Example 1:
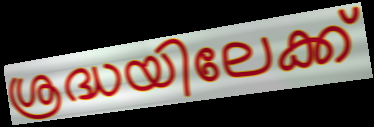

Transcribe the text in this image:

ശ്രദ്ധയിലേക്ക്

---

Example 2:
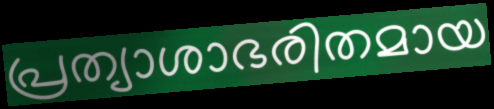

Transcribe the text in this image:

പ്രത്യാശാഭരിതമായ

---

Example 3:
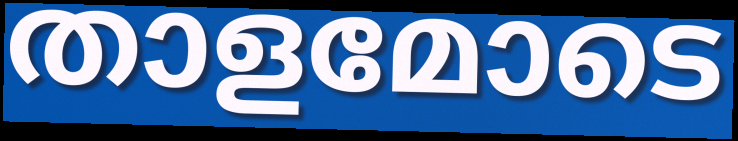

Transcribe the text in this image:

താളമോടെ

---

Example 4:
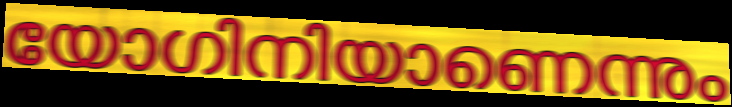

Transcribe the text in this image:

യോഗിനിയാണെന്നും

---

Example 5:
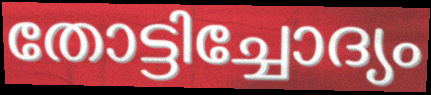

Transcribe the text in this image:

തോട്ടിച്ചോദ്യം